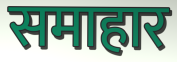
समाहार